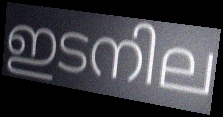
ഇടനില